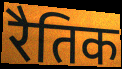
रैतिक